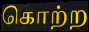
கொற்ற